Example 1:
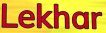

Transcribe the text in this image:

Lekhar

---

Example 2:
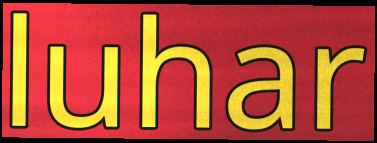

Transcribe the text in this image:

luhar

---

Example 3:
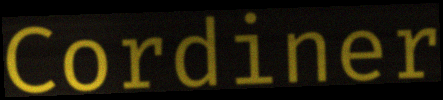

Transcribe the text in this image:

Cordiner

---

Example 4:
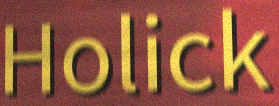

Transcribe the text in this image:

Holick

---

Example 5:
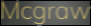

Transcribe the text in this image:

Mcgraw